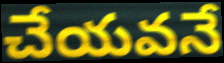
చేయవనే